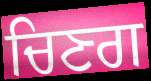
ਚਿਣਗ